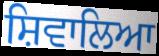
ਸ਼ਿਵਾਲਿਆ